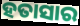
ହତାସାର